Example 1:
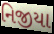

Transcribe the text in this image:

નિજીયા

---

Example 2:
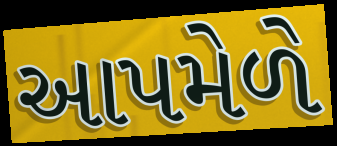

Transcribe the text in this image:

આપમેળે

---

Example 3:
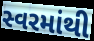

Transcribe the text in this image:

સ્વરમાંથી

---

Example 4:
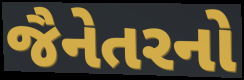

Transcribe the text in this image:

જૈનેતરનો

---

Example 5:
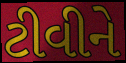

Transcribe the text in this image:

ટીવીને